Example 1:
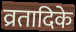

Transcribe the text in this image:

व्रतादिके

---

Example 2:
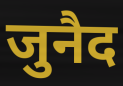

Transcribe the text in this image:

जुनैद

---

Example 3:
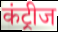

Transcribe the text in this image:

कंट्रीज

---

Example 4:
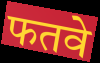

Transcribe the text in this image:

फतवे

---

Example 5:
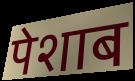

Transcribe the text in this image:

पेशाब